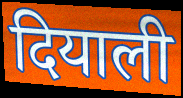
दियाली